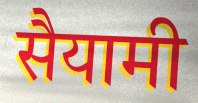
सैयामी